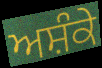
ਅਸ਼ੰਕੇ